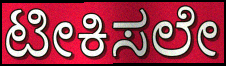
ಟೀಕಿಸಲೇ